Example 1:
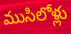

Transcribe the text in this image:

ముసిలోళ్లు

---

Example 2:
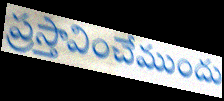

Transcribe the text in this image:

ప్రస్తావించేముందు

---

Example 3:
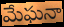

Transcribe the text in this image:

మేఘనా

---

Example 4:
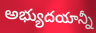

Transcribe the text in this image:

అభ్యుదయాన్నీ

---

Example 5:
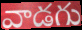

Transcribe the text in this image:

వాడగు